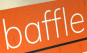
baffle